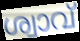
ശ്വാവ്